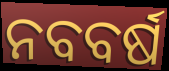
ନବବର୍ଷ